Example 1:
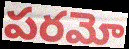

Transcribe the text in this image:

పరమో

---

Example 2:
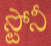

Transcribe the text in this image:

స్టోనీ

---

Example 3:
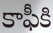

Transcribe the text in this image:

కాఫీకి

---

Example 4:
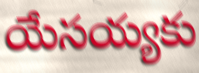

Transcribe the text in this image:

యేసయ్యకు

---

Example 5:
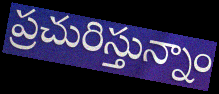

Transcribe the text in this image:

ప్రచురిస్తున్నాం